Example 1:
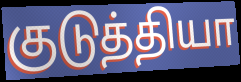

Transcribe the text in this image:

குடுத்தியா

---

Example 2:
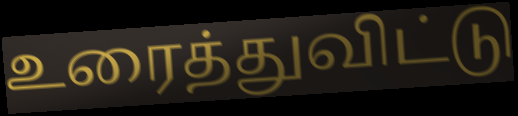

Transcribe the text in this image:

உரைத்துவிட்டு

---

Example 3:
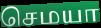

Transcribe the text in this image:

செமயா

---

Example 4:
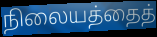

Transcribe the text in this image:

நிலையத்தைத்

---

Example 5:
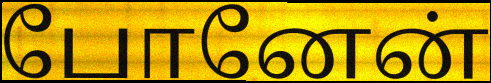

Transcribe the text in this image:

போனேன்